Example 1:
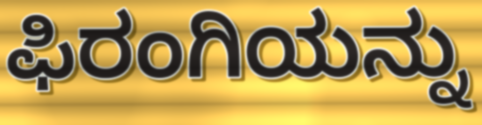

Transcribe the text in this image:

ಫಿರಂಗಿಯನ್ನು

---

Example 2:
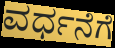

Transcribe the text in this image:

ವರ್ಧನೆಗೆ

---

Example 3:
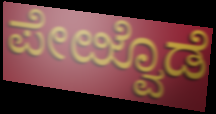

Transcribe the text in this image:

ಪೇೞ್ವೊಡೆ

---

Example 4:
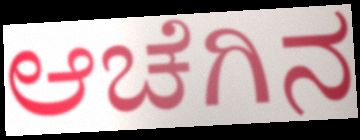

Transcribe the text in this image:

ಆಚೆಗಿನ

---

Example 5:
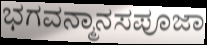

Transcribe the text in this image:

ಭಗವನ್ಮಾನಸಪೂಜಾ